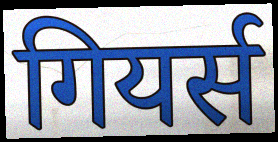
गियर्स